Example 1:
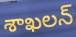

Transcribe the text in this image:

శాఖలన్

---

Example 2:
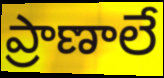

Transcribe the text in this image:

ప్రాణాలే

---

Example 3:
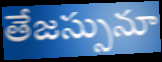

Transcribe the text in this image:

తేజస్సునూ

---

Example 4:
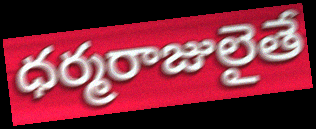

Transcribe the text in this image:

ధర్మరాజులైతే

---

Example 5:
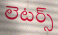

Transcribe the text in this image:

లెటర్స్